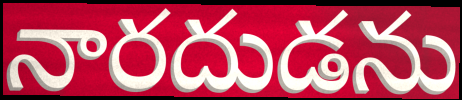
నారదుడను